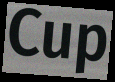
Cup